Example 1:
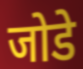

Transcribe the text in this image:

जोडे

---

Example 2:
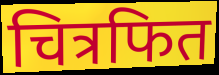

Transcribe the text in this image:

चित्रफित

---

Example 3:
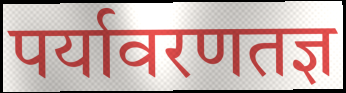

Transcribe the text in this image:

पर्यावरणतज्ञ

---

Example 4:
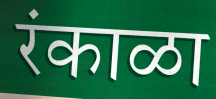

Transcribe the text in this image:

रंकाळा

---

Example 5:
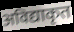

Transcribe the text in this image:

अविद्याकृत